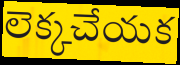
లెక్కచేయక